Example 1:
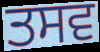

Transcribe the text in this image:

ਤਸਵ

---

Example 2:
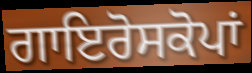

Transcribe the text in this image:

ਗਾਇਰੋਸਕੋਪਾਂ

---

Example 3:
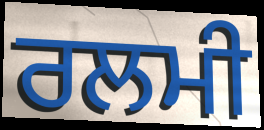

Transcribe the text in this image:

ਰਲਮੀ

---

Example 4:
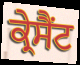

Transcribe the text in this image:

ਕ੍ਰੇਸੈਂਟ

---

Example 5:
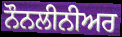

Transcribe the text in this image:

ਨੌਨਲੀਨੀਅਰ